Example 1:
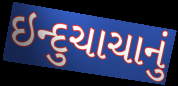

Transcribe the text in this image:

ઇન્દુચાચાનું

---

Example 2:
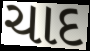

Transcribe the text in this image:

ચાદ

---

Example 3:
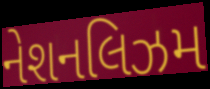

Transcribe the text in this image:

નેશનલિઝમ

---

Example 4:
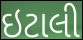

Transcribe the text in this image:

ઇટાલી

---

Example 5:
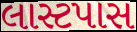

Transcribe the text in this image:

લાસ્ટપાસ